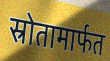
स्रोतामार्फत